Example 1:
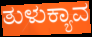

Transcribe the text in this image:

ತುಳುಕ್ಯಾವ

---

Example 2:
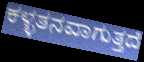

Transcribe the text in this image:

ಕಳ್ಳತನವಾಗುತ್ತದೆ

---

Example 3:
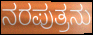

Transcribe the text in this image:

ನರಪುತ್ರನು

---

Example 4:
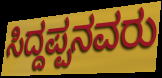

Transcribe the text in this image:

ಸಿದ್ದಪ್ಪನವರು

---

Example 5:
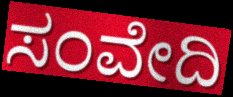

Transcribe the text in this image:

ಸಂವೇದಿ